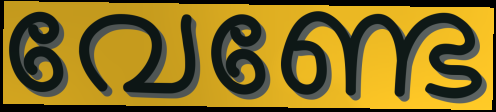
വേണ്ടേ